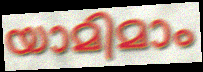
യാമിമാം